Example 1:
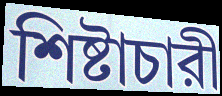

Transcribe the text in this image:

শিষ্টাচারী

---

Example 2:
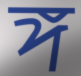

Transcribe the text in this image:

ঙ্গ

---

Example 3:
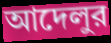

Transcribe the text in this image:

আদেলুর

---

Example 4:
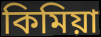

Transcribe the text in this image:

কিমিয়া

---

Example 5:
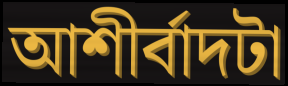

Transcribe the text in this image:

আশীর্বাদটা